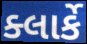
ક્લાર્કે